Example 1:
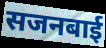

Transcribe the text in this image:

सजनबाई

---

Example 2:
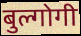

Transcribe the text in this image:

बुल्गोगी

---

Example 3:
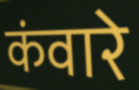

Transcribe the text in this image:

कंवारे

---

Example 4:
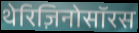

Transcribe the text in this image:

थेरिज़िनोसॉरस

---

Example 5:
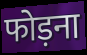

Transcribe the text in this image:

फोड़ना